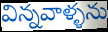
విన్నవాళ్ళను